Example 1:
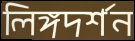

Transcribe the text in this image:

লিঙ্গদর্শন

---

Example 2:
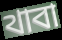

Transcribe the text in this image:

থাবা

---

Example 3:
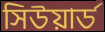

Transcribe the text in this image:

সিউয়ার্ড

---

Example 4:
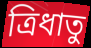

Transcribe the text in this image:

ত্রিধাতু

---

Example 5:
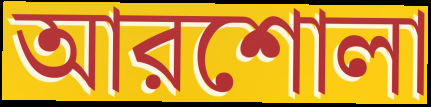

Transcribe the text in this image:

আরশোলা